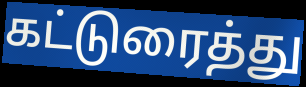
கட்டுரைத்து